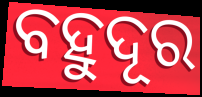
ବହୁଦୂର